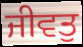
ਜੀਵਤੁ